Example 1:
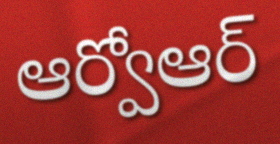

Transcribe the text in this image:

ఆర్వోఆర్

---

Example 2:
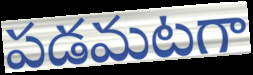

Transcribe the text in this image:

పడమటగా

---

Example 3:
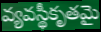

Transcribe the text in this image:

వ్యవస్థీకృతమై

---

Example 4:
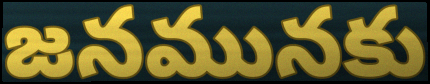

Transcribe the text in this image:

జనమునకు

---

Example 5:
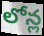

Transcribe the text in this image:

లోన్ల